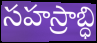
సహస్రాబ్ధి